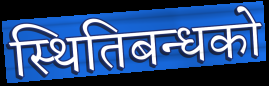
स्थितिबन्धको